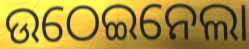
ଉଠେଇନେଲା